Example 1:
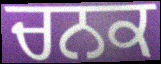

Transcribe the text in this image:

ਚਨਕ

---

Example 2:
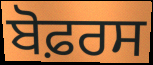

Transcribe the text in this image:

ਬੋਫ਼ਰਸ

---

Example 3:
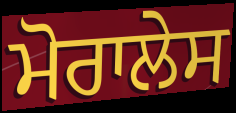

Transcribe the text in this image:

ਮੋਰਾਲੇਸ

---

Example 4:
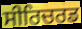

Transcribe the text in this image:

ਸੀਰਿਚਰਡ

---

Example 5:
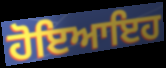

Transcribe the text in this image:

ਹੋਇਆਇਹ